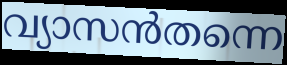
വ്യാസൻതന്നെ